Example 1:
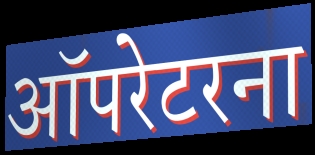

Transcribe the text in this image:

ऑपरेटरना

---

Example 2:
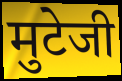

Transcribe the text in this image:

मुटेजी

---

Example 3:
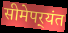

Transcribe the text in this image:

सीमेपर्यंत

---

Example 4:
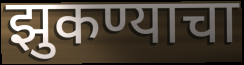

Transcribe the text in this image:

झुकण्याचा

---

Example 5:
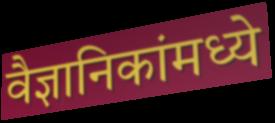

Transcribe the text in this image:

वैज्ञानिकांमध्ये